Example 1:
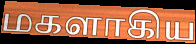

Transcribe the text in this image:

மகளாகிய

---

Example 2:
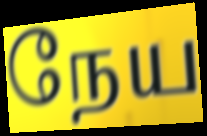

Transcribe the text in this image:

நேய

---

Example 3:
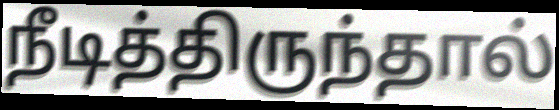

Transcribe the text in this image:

நீடித்திருந்தால்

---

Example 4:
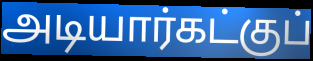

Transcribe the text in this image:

அடியார்கட்குப்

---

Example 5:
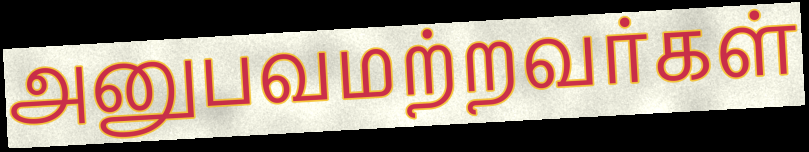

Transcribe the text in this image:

அனுபவமற்றவர்கள்